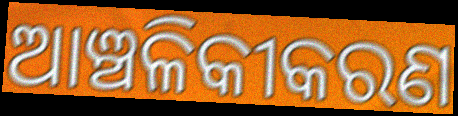
ଆଞ୍ଚଳିକୀକରଣ